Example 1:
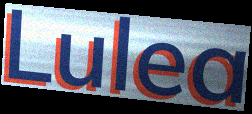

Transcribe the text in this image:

Lulea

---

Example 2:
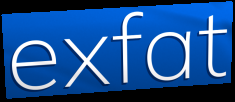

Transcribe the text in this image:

exfat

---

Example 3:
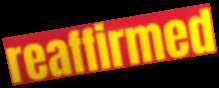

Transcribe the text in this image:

reaffirmed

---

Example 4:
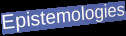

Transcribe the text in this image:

Epistemologies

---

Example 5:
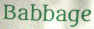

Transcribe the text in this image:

Babbage